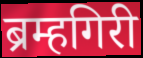
ब्रम्हगिरी